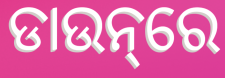
ଡାଉନ୍‌ରେ